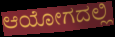
ಆಯೋಗದಲ್ಲಿ